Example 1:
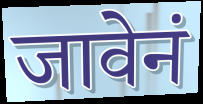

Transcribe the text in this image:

जावेनं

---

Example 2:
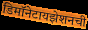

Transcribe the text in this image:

डिमॉनेटायझेशनची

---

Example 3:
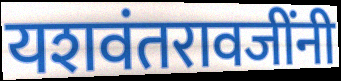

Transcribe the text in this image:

यशवंतरावजींनी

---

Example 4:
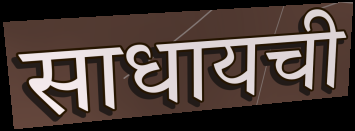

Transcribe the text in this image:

साधायची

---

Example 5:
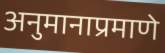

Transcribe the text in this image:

अनुमानाप्रमाणे